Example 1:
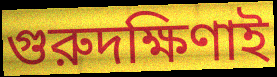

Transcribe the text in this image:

গুরুদক্ষিণাই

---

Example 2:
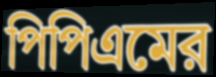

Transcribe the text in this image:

পিপিএমের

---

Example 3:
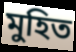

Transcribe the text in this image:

মুহিত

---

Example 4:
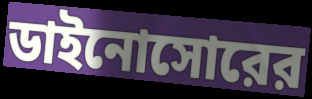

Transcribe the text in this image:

ডাইনোসোরের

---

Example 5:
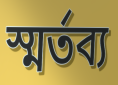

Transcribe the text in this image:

স্মর্তব্য